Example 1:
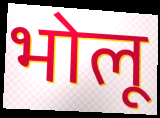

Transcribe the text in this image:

भोलू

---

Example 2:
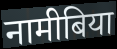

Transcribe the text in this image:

नामीबिया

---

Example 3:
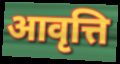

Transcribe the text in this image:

आवृत्ति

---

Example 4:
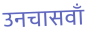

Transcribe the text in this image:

उनचासवाँ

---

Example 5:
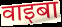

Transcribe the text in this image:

वाइबा